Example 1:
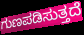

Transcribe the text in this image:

ಗುಣಪಡಿಸುತ್ತದೆ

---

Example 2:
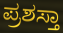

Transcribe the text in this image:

ಪ್ರಶಸ್ತಾ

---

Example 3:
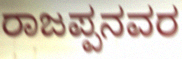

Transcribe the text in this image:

ರಾಜಪ್ಪನವರ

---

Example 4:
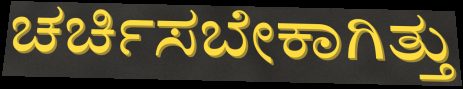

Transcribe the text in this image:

ಚರ್ಚಿಸಬೇಕಾಗಿತ್ತು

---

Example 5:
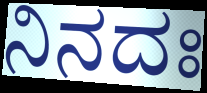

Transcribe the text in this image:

ನಿನದಃ